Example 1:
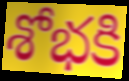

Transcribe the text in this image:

శోభకి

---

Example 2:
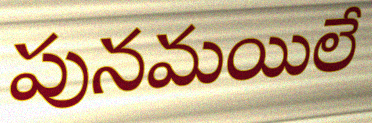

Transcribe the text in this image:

పునమయిలే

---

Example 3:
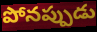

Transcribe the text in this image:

పోనప్పుడు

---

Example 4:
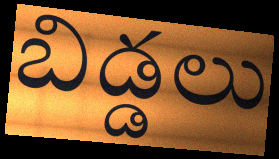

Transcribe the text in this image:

బిడ్డలు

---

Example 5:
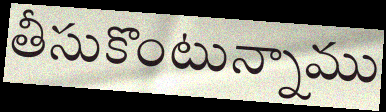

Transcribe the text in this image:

తీసుకొంటున్నాము